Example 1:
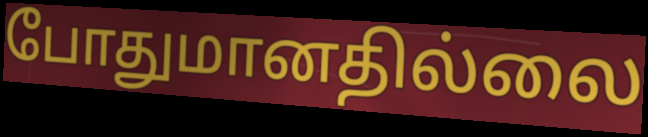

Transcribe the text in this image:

போதுமானதில்லை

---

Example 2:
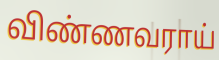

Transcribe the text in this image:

விண்ணவராய்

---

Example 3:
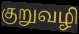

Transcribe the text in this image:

குறுவழி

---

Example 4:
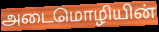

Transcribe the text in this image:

அடைமொழியின்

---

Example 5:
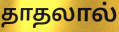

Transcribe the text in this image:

தாதலால்